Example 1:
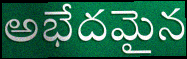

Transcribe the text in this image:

అభేదమైన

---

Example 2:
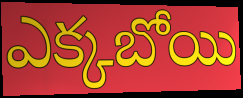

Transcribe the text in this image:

ఎక్కబోయి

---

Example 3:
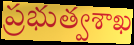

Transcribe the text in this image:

ప్రభుత్వశాఖ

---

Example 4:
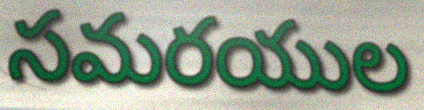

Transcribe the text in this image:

సమరయుల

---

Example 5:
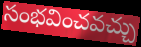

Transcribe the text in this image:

సంభవించవచ్చు